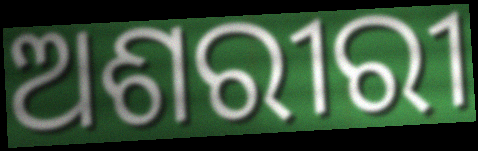
ଅଶରୀରୀ